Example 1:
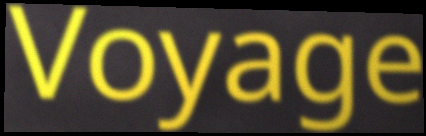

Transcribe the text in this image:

Voyage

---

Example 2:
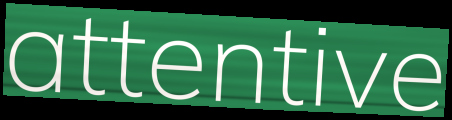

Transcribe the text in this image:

attentive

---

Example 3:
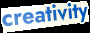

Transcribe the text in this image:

creativity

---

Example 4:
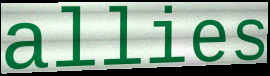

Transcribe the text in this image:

allies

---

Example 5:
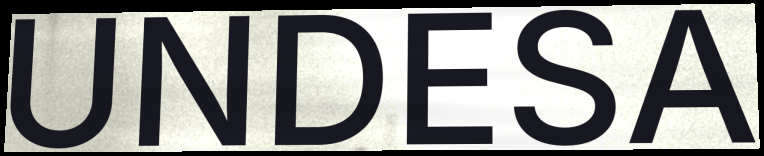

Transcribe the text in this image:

UNDESA